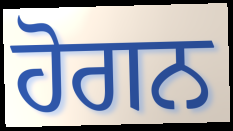
ਹੋਗਨ